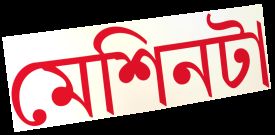
মেশিনটা